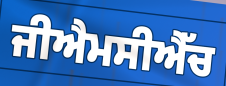
ਜੀਐਮਸੀਐੱਚ